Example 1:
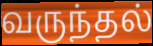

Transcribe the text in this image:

வருந்தல்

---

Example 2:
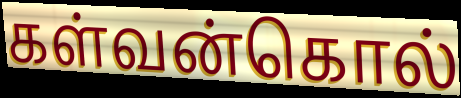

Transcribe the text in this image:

கள்வன்கொல்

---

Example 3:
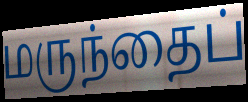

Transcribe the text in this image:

மருந்தைப்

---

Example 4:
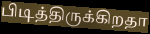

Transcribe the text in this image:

பிடித்திருக்கிறதா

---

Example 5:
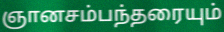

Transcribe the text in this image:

ஞானசம்பந்தரையும்